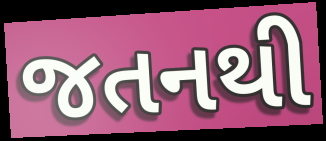
જતનથી